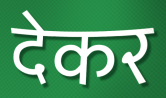
देकर